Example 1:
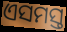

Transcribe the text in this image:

ଏସମସ୍ତ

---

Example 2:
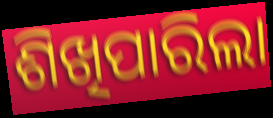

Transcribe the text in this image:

ଶିଖିପାରିଲା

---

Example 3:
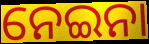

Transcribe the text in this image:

ନେଇନା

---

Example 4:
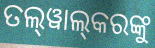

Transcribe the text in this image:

ତଲ୍‌ୱାଲ୍‌କରଙ୍କୁ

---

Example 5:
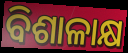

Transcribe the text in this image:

ବିଶାଳାକ୍ଷ